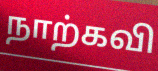
நாற்கவி